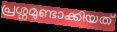
പ്രശ്നമുണ്ടാക്കിയത്